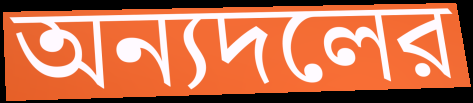
অন্যদলের